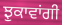
ਝੁਕਾਵਾਂਗੀ